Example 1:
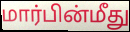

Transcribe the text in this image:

மார்பின்மீது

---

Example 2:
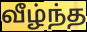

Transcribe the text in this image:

வீழ்ந்த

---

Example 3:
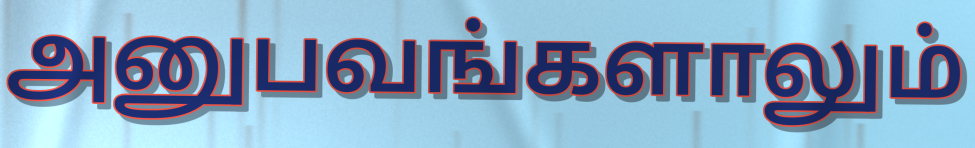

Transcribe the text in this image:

அனுபவங்களாலும்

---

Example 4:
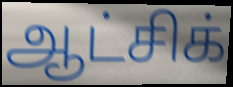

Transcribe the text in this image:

ஆட்சிக்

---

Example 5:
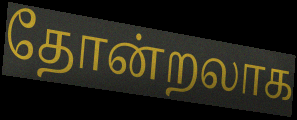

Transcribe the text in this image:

தோன்றலாக